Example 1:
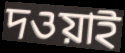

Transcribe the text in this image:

দওয়াই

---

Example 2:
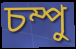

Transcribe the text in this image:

চম্পু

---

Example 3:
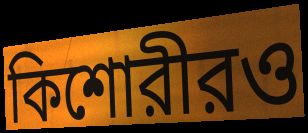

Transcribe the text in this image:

কিশোরীরও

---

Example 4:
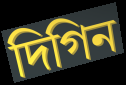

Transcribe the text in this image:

দিগিন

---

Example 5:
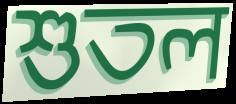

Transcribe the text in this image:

শুতল